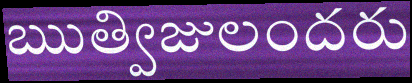
ఋత్విజులందరు